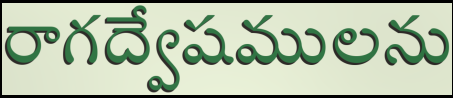
రాగద్వేషములను